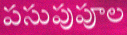
పసుపుపూల